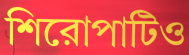
শিরোপাটিও